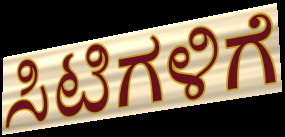
ಸಿಟಿಗಳಿಗೆ